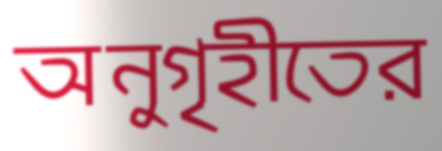
অনুগৃহীতের